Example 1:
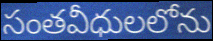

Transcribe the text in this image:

సంతవీధులలోను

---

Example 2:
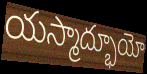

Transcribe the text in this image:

యస్మాద్భూయో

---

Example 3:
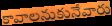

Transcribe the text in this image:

కావాలనుకునేవారు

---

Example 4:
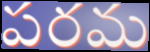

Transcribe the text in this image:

పరమ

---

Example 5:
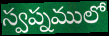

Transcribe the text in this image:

స్వప్నములో